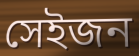
সেইজন